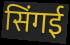
सिंगई